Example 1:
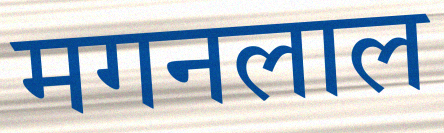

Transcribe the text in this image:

मगनलाल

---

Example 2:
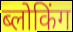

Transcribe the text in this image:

ब्लोकिंग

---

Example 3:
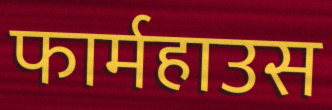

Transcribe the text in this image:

फार्महाउस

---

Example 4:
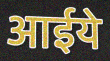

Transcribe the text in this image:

आईये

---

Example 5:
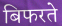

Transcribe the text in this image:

बिफरते